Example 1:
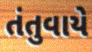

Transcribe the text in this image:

તંતુવાયે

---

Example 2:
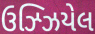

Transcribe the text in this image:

ઉઝ્ઝિયેલ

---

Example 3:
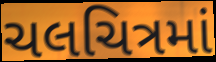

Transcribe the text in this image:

ચલચિત્રમાં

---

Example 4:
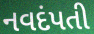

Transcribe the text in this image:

નવદંપતી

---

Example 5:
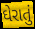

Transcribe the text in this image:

ઘેરાતું